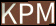
KPM